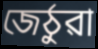
জেঠুৱা